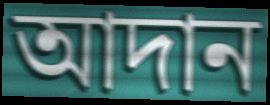
আদান